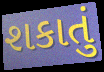
શકાતું